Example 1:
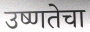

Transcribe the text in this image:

उष्णतेचा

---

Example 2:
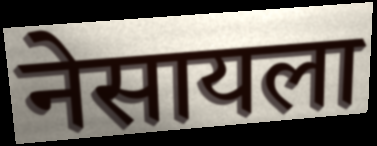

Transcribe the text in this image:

नेसायला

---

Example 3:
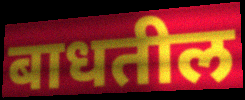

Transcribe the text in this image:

बाधतील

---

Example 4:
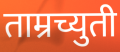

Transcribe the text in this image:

ताम्रच्युती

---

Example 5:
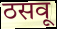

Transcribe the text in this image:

ठसवू